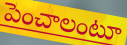
పెంచాలంటూ